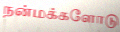
நன்மக்களோடு